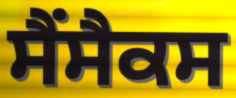
ਸੈਂਸੈਕਸ